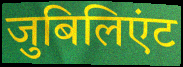
जुबिलिएंट